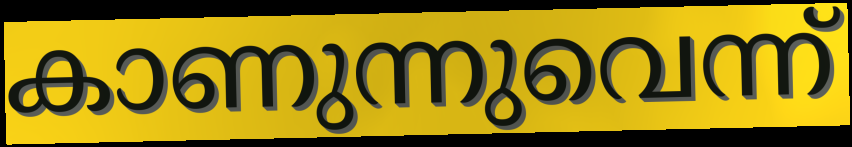
കാണുന്നുവെന്ന്